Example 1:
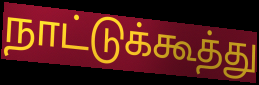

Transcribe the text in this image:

நாட்டுக்கூத்து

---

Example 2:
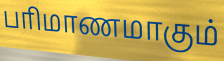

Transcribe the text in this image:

பரிமாணமாகும்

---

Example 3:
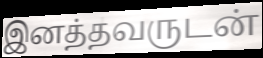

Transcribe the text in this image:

இனத்தவருடன்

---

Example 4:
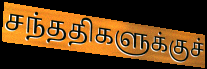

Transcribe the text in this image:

சந்ததிகளுக்குச்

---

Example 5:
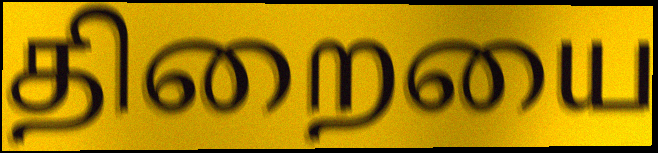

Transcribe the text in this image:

திறையை